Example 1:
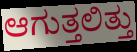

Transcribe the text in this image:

ಆಗುತ್ತಲಿತ್ತು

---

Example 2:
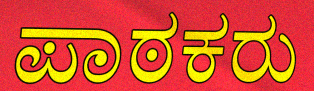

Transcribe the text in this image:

ಪಾಠಕರು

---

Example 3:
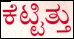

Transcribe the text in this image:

ಕೆಟ್ಟಿತ್ತು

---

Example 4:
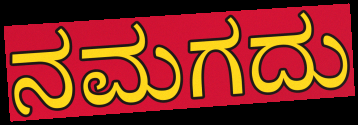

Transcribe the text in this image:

ನಮಗದು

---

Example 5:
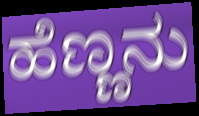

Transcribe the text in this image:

ಹೆಣ್ಣನು